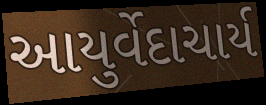
આયુર્વેદાચાર્ય